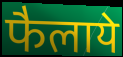
फैलाये